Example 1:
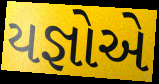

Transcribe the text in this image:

યજ્ઞોએ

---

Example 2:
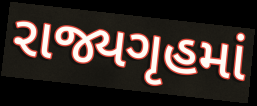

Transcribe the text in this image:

રાજ્યગૃહમાં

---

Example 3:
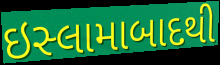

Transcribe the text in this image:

ઇસ્લામાબાદથી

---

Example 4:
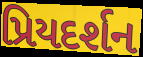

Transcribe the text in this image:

પ્રિયદર્શન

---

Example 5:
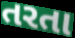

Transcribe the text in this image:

તરતા